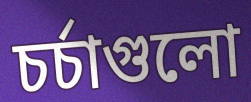
চর্চাগুলো